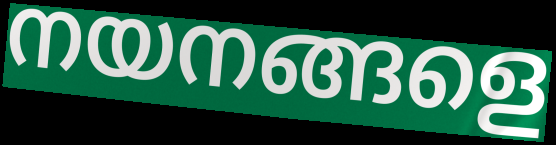
നയനങ്ങളെ